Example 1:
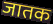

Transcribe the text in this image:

जातक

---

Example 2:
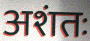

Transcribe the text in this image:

अशंतः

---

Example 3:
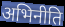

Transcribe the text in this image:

अभिनीति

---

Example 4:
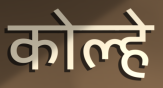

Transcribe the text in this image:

कोल्हे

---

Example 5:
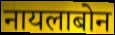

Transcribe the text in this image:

नायलाबोन